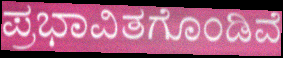
ಪ್ರಭಾವಿತಗೊಂಡಿವೆ